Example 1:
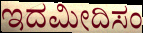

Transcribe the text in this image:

ಇದಮೀದಿಸಂ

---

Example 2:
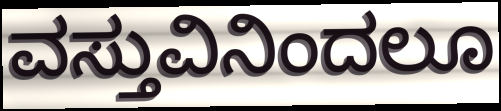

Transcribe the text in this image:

ವಸ್ತುವಿನಿಂದಲೂ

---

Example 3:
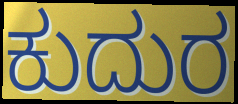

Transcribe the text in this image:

ಕುದುರ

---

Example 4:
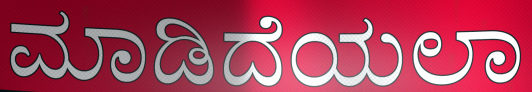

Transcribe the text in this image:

ಮಾಡಿದೆಯಲಾ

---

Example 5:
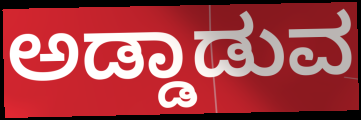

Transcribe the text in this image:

ಅಡ್ಡಾಡುವ